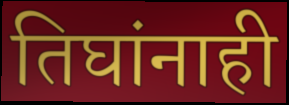
तिघांनाही